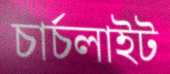
চাৰ্চলাইট